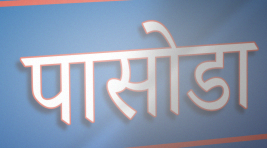
पासोडा